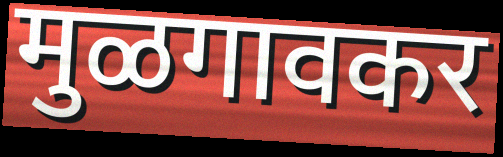
मुळगावकर